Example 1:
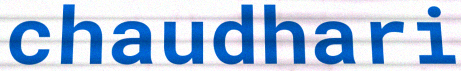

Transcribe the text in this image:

chaudhari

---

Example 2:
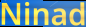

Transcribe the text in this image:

Ninad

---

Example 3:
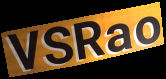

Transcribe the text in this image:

VSRao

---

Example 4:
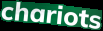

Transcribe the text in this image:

chariots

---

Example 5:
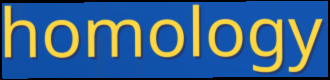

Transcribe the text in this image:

homology